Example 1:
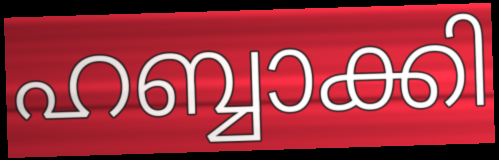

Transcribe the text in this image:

ഹബ്ബാക്കി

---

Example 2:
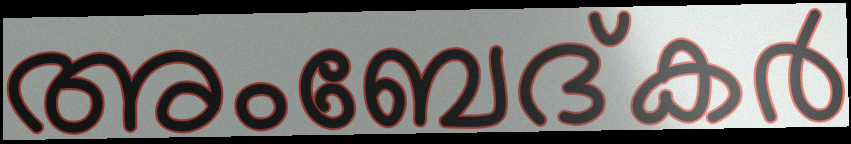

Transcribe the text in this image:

അംബേദ്കർ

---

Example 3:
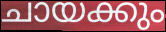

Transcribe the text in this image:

ചായക്കും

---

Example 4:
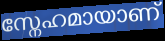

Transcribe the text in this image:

സ്നേഹമായാണ്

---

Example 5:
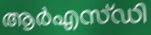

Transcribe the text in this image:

ആർഎസ്ഡി